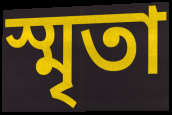
স্মৃতা